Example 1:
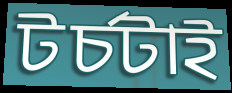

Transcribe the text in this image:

টর্চটাই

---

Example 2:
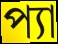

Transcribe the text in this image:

প্যা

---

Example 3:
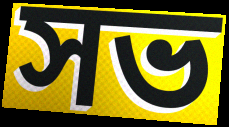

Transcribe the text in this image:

সভ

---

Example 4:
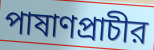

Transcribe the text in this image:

পাষাণপ্রাচীর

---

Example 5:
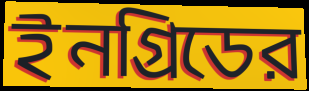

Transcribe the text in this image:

ইনগ্রিডের